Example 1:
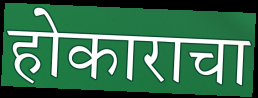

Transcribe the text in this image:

होकाराचा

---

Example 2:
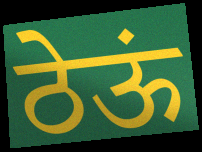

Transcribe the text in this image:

ठेऊं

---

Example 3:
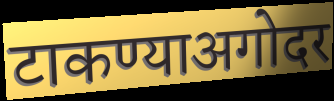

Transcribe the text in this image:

टाकण्याअगोदर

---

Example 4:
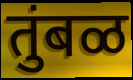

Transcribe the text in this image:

तुंबळ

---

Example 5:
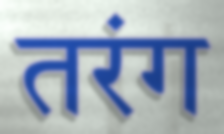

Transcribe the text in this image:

तरंग